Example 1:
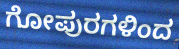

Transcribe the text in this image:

ಗೋಪುರಗಳಿಂದ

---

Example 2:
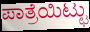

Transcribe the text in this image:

ಪಾತ್ರೆಯಿಟ್ಟು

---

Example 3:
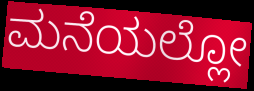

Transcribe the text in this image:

ಮನೆಯಲ್ಲೋ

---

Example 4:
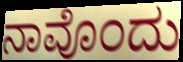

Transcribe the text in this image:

ನಾವೊಂದು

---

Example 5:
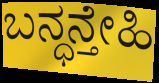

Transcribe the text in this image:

ಬನ್ಧನ್ತೇಹಿ